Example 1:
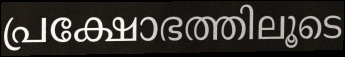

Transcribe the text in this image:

പ്രക്ഷോഭത്തിലൂടെ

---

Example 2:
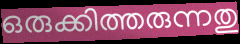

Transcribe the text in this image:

ഒരുക്കിത്തരുന്നതു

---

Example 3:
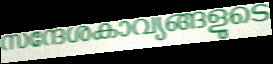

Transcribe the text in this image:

സന്ദേശകാവ്യങ്ങളുടെ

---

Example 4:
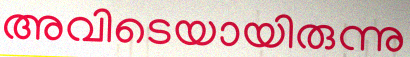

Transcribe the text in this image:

അവിടെയായിരുന്നു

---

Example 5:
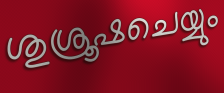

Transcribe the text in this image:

ശുശ്രൂഷചെയ്യും